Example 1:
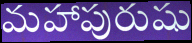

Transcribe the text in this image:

మహాపురుషు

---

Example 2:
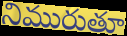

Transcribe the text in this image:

నిమురుతూ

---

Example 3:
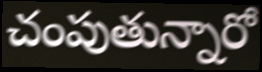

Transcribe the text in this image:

చంపుతున్నారో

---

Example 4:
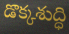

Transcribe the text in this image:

డొక్కశుద్ధి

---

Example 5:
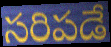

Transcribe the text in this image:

సరిపడే